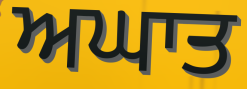
ਅਘਾਤ